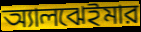
অ্যালঝেইমার